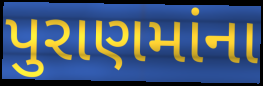
પુરાણમાંના